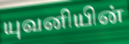
யுவனியின்